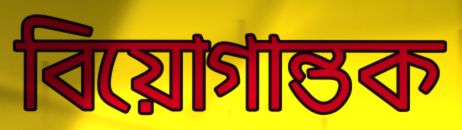
বিয়োগান্তক